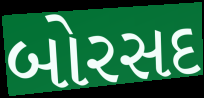
બોરસદ